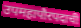
उपमहापौरपदाची